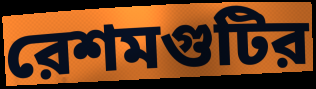
রেশমগুটির